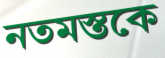
নতমস্তকে